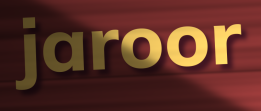
jaroor